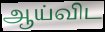
ஆய்விட